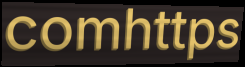
comhttps